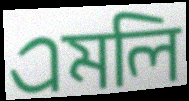
এমলি